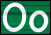
Oo